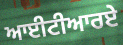
ਆਈਟੀਆਰਏ